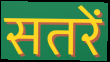
सतरें